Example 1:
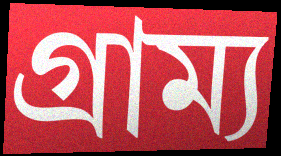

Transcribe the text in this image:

গ্ৰাম্য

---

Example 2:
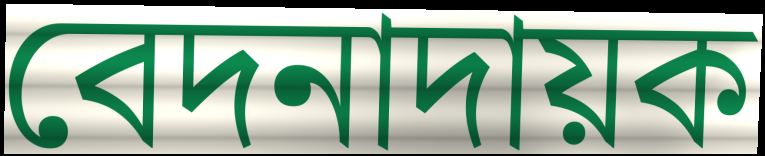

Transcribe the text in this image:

বেদনাদায়ক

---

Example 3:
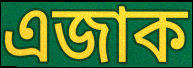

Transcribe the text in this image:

এজাক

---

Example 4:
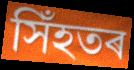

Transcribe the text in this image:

সিঁহতৰ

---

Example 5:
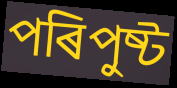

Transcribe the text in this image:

পৰিপুষ্ট